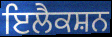
ਇਲੈਕਸ਼ਨ